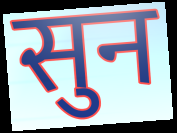
सुन